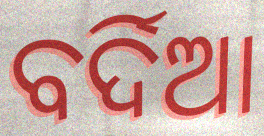
ବର୍ଦିଆ